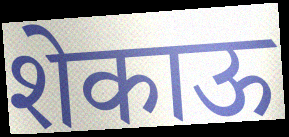
शेकाऊ